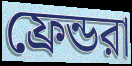
ফ্রেন্ডরা